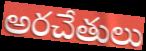
అరచేతులు